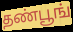
தண்பூங்